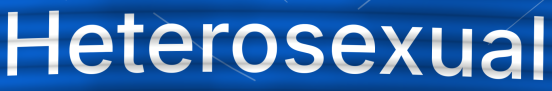
Heterosexual